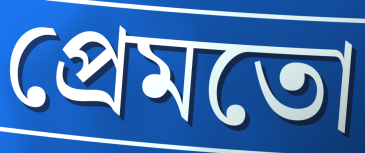
প্ৰেমতো